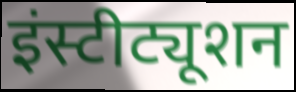
इंस्टीट्यूशन